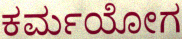
ಕರ್ಮಯೋಗ